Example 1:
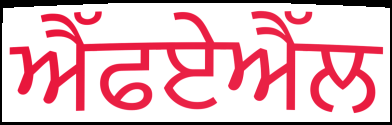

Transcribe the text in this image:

ਐੱਫਏਐੱਲ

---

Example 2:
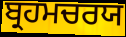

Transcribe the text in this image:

ਬ੍ਰਹਮਚਰਯ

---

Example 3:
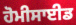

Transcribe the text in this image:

ਹੋਮੀਸਾਈਡ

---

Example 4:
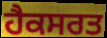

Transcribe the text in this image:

ਹੈਕਸਰਤ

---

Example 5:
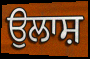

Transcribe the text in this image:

ਉਲਾਸ਼